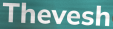
Thevesh